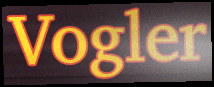
Vogler